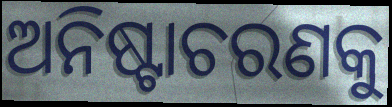
ଅନିଷ୍ଟାଚରଣକୁ